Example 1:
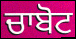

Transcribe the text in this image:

ਚਾਬੋਟ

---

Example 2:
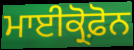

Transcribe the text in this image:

ਮਾਈਕ੍ਰੋਫ਼ੋਨ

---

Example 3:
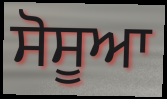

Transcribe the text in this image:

ਸੋਸੂਆ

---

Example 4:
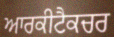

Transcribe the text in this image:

ਆਰਕੀਟੈਕਚਰ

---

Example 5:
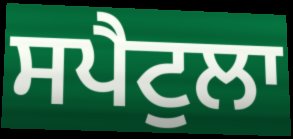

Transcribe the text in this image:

ਸਪੈਟੁਲਾ